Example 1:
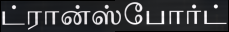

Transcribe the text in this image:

ட்ரான்ஸ்போர்ட்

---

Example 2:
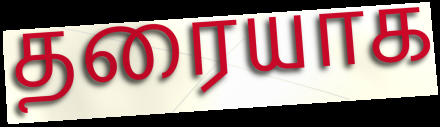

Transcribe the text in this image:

தரையாக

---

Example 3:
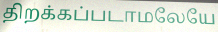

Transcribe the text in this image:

திறக்கப்படாமலேயே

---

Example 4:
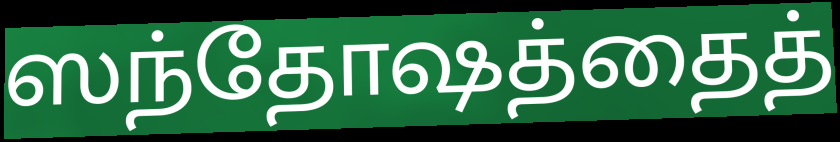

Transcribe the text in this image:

ஸந்தோஷத்தைத்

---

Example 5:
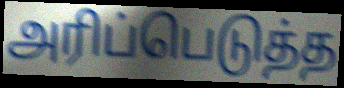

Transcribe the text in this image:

அரிப்பெடுத்த